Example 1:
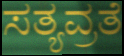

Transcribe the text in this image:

ಸತ್ಯವ್ರತೆ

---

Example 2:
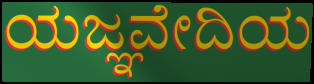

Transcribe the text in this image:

ಯಜ್ಞವೇದಿಯ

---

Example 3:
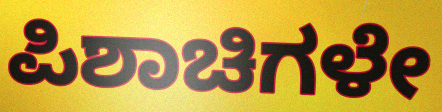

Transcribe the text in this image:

ಪಿಶಾಚಿಗಳೇ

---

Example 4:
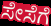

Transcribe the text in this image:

ಸೇಸೆಗೆ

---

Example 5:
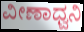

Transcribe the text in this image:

ವೀಣಾಧ್ವನಿ